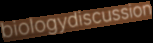
biologydiscussion